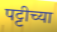
पट्टीच्या